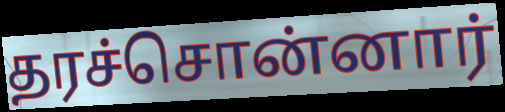
தரச்சொன்னார்